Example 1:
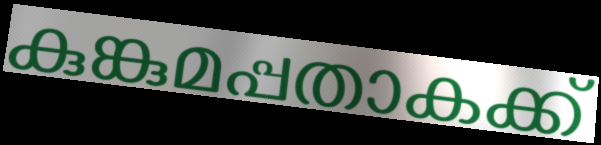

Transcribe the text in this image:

കുങ്കുമപ്പതാകക്ക്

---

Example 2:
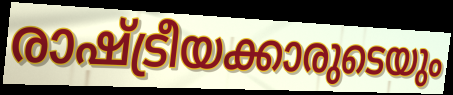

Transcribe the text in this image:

രാഷ്ട്രീയക്കാരുടെയും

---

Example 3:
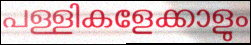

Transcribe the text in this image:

പള്ളികളേക്കാളും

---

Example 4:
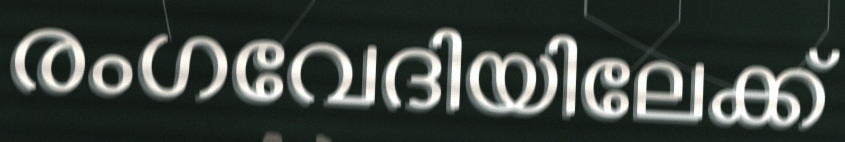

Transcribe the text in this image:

രംഗവേദിയിലേക്ക്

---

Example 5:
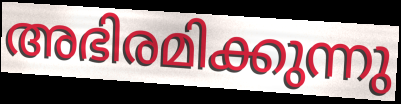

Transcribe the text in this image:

അഭിരമിക്കുന്നു